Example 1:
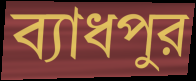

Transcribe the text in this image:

ব্যাধপুর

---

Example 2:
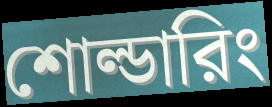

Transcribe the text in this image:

শোল্ডারিং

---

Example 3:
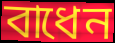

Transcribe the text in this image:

বাধেন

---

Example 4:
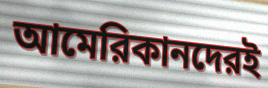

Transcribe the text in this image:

আমেরিকানদেরই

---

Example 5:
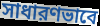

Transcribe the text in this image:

সাধারণভাবে